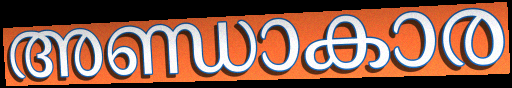
അണ്ഡാകാര